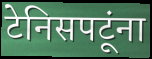
टेनिसपटूंना